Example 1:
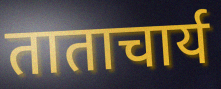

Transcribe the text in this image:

ताताचार्य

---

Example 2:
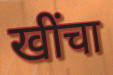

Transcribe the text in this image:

खींचा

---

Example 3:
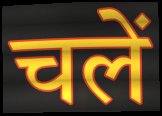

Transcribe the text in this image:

चलें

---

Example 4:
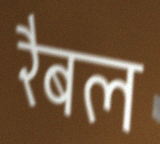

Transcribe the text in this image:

रैबल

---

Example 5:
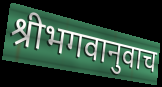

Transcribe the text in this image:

श्रीभगवानुवाच